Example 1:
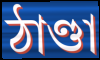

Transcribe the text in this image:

ঠাণ্ডা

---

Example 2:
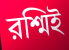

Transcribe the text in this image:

রশ্মিই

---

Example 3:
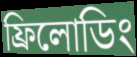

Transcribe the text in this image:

ফ্রিলোডিং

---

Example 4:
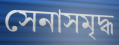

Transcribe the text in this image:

সেনাসমৃদ্ধ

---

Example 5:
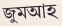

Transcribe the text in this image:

জুমআহ